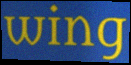
wing